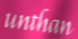
unthan